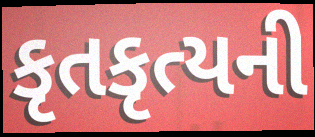
કૃતકૃત્યની